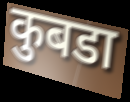
कुबडा